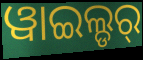
ୱାଇଲ୍ଡର୍